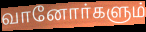
வானோர்களும்